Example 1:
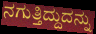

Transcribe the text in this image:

ನಗುತ್ತಿದ್ದುದನ್ನು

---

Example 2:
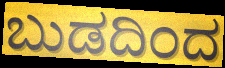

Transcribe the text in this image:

ಬುಡದಿಂದ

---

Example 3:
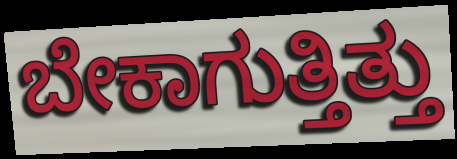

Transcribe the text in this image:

ಬೇಕಾಗುತ್ತಿತ್ತು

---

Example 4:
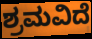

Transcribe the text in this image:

ಶ್ರಮವಿದೆ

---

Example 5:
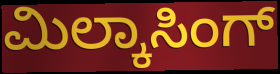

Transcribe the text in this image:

ಮಿಲ್ಕಾಸಿಂಗ್